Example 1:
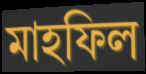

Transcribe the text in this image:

মাহফিল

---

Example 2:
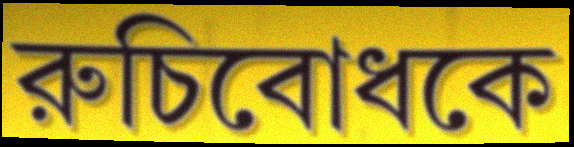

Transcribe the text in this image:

রুচিবোধকে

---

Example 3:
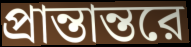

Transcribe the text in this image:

প্রান্তান্তরে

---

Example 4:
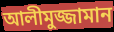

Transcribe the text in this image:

আলীমুজ্জামান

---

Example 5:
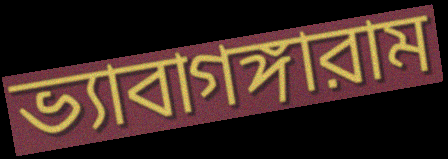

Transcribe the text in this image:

ভ্যাবাগঙ্গারাম